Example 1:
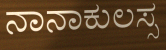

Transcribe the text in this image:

ನಾನಾಕುಲಸ್ಸ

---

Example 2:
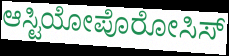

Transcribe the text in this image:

ಆಸ್ಟಿಯೋಪೊರೋಸಿಸ್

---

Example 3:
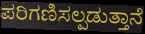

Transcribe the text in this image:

ಪರಿಗಣಿಸಲ್ಪಡುತ್ತಾನೆ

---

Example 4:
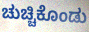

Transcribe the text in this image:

ಚುಚ್ಚಿಕೊಂಡು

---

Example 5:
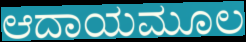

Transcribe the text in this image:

ಆದಾಯಮೂಲ